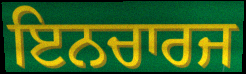
ਇਨਚਾਰਜ